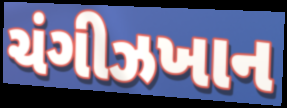
ચંગીઝખાન